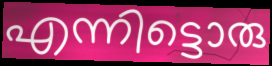
എന്നിട്ടൊരു